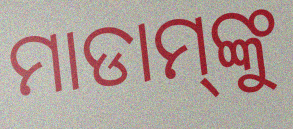
ମାଡାମ୍‌ଙ୍କୁ